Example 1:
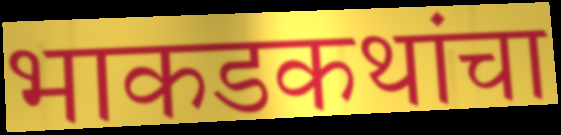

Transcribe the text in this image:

भाकडकथांचा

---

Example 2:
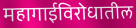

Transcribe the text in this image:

महागाईविरोधातील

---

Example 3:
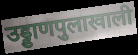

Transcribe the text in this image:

उड्डाणपुलाखाली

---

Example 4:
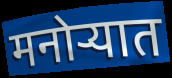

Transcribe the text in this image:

मनोऱ्यात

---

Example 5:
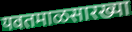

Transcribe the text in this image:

यवतमाळसारख्या